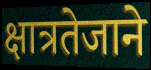
क्षात्रतेजाने